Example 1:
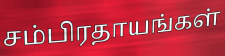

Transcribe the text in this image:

சம்பிரதாயங்கள்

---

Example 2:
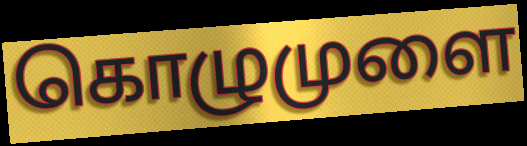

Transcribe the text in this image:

கொழுமுளை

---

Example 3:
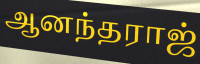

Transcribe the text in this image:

ஆனந்தராஜ்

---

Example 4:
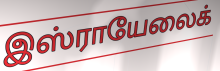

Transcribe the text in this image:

இஸ்ராயேலைக்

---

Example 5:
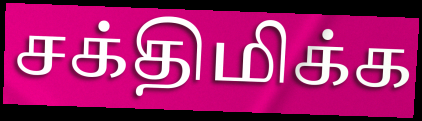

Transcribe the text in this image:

சக்திமிக்க